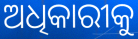
ଅଧିକାରୀକୁ